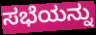
ಸಭೆಯನ್ನು